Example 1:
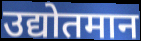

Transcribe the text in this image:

उद्योतमान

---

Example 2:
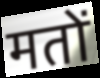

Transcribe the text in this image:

मतों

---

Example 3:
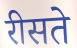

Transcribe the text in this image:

रीसते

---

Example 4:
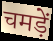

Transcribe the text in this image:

चमड़ें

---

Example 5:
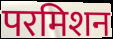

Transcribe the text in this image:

परमिशन